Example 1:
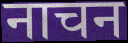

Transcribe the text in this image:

नाचन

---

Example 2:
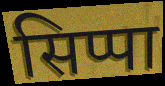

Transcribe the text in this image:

सिप्पा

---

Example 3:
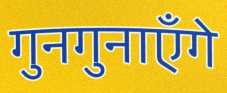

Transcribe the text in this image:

गुनगुनाएँगे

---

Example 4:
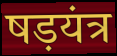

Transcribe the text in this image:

षड़यंत्र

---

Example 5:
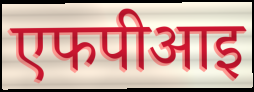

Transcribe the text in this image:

एफपीआइ